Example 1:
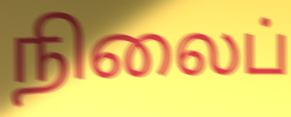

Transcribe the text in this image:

நிலைப்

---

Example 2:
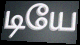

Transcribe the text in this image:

டியே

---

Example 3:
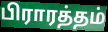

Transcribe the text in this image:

பிராரத்தம்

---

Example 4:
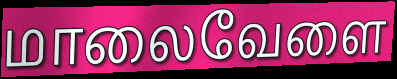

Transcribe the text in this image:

மாலைவேளை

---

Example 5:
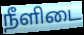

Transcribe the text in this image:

நீளிடை